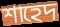
শাহেদ